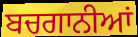
ਬਚਗਾਨੀਆਂ